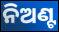
ନିଅଣ୍ଟ